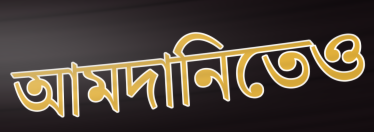
আমদানিতেও